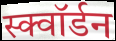
स्क्वॉर्डन